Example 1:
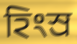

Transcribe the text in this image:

হিংস্র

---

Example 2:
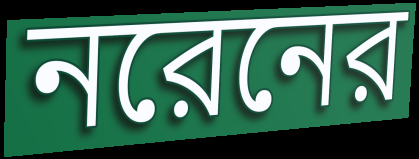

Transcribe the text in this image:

নরেনের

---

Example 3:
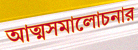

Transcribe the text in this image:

আত্মসমালোচনার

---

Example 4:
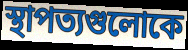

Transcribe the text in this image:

স্থাপত্যগুলোকে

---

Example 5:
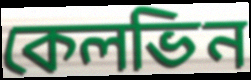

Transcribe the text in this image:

কেলভিন